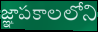
జ్ఞాపకాలలోని